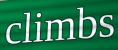
climbs